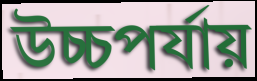
উচ্চপর্যায়